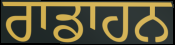
ਰਾਡਾਹਨ